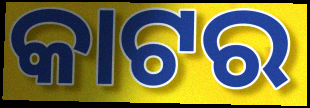
କାଟର